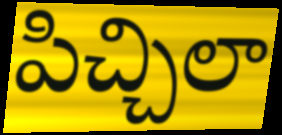
పిచ్చిలా